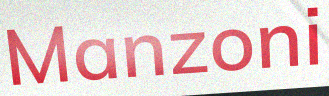
Manzoni